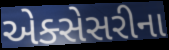
એક્સેસરીના